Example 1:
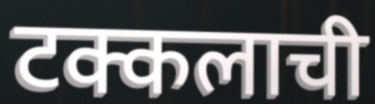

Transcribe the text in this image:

टक्कलाची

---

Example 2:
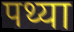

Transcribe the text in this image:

पथ्या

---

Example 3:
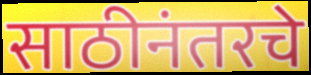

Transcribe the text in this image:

साठीनंतरचे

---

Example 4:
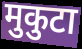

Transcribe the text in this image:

मुकुटा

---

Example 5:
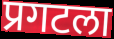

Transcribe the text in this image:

प्रगटला